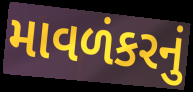
માવળંકરનું